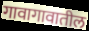
गावागावातील